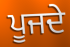
ਪੂਜਦੇ